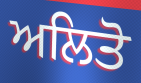
ਅਲਿਤੋ